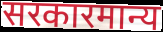
सरकारमान्य